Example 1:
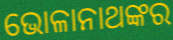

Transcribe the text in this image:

ଭୋଳାନାଥଙ୍କର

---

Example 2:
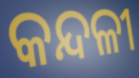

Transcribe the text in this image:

କନ୍ଦଳୀ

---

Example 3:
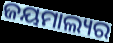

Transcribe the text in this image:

ଜୟମାଲ୍ୟର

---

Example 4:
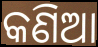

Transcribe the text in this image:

କଣିଆ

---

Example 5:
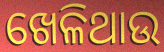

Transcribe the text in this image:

ଖେଳିଥାଉ